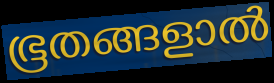
ഭൂതങ്ങളാൽ